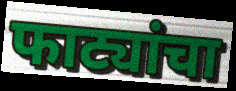
फाट्यांचा